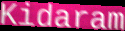
Kidaram